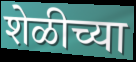
शेळीच्या